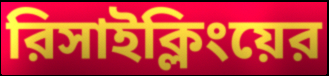
রিসাইক্লিংয়ের